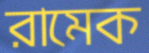
রামেক